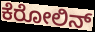
ಕೆರೋಲಿನ್